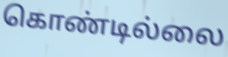
கொண்டில்லை